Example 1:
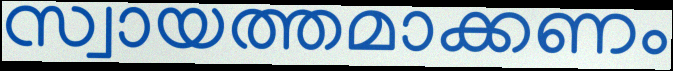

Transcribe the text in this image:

സ്വായത്തമാക്കണം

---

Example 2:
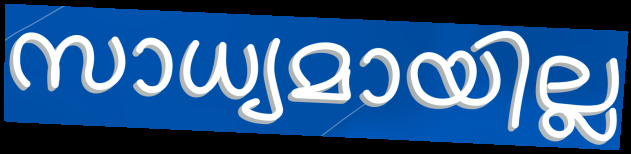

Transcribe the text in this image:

സാധ്യമായില്ല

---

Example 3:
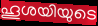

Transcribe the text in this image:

ഹൂശയിയുടെ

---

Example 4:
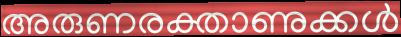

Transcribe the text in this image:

അരുണരക്താണുക്കൾ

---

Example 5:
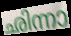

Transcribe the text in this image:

ഛിന്നാ